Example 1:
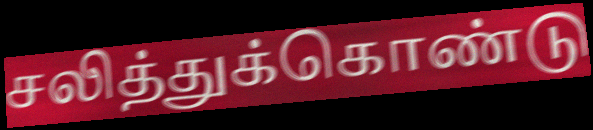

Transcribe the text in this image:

சலித்துக்கொண்டு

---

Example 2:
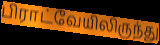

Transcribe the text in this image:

பிராட்வேயிலிருந்து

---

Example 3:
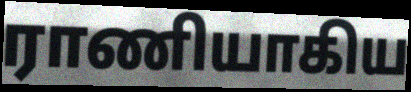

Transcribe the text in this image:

ராணியாகிய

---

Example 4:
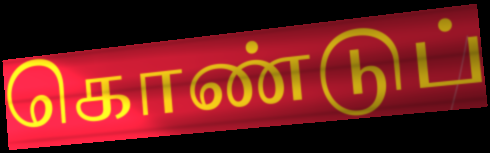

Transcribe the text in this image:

கொண்டுப்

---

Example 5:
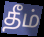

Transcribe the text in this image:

தீம்